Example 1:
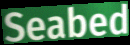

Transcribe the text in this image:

Seabed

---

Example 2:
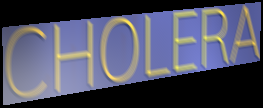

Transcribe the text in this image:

CHOLERA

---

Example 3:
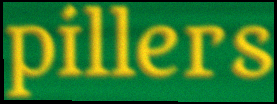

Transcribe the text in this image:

pillers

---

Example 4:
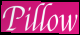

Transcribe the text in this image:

Pillow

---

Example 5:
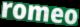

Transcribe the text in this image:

romeo